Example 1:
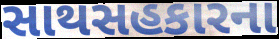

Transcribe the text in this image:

સાથસહકારના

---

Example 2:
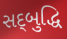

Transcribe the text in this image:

સદ્‌બુદ્ધિ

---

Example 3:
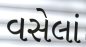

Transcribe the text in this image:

વસેલાં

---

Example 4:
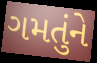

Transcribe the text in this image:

ગમતુંને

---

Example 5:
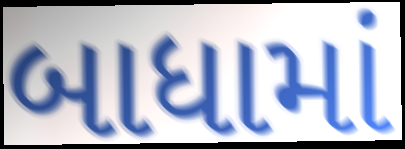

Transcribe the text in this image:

બાધામાં